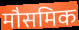
मौसमिक